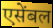
एसेंबल